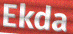
Ekda